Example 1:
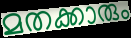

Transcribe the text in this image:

മതക്കാരും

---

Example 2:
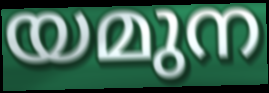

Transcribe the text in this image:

യമുന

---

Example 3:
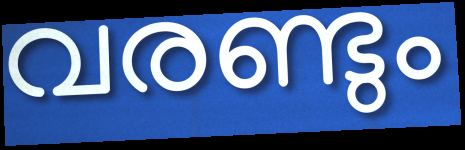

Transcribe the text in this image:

വരണ്ടും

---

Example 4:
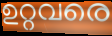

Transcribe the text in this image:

ഉറ്റവരെ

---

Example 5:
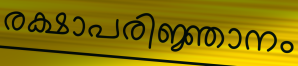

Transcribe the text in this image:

രക്ഷാപരിജ്ഞാനം